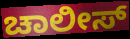
ಚಾಲೀಸ್